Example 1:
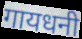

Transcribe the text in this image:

गायधनी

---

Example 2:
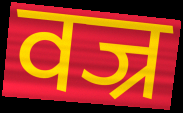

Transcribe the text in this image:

वज्र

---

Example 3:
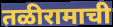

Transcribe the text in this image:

तळीरामाची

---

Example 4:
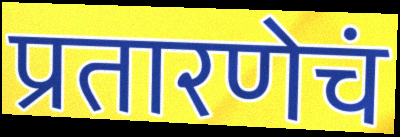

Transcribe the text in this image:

प्रतारणेचं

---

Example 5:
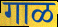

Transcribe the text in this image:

गाळ